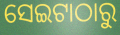
ସେଇଟାଠାରୁ